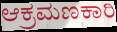
ಆಕ್ರಮಣಕಾರಿ